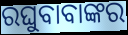
ରଘୁବାବାଙ୍କର